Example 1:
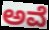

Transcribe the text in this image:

ಅವೆ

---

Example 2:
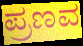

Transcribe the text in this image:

ಪ್ರಣವ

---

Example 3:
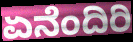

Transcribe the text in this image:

ಏನೆಂದಿರಿ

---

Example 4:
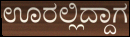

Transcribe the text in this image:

ಊರಲ್ಲಿದ್ದಾಗ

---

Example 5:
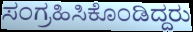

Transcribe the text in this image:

ಸಂಗ್ರಹಿಸಿಕೊಂಡಿದ್ದರು